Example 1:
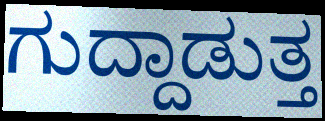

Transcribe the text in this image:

ಗುದ್ದಾಡುತ್ತ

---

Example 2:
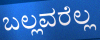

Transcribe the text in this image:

ಬಲ್ಲವರೆಲ್ಲ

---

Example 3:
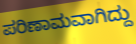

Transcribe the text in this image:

ಪರಿಣಾಮವಾಗಿದ್ದು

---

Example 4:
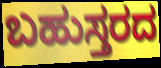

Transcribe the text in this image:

ಬಹುಸ್ತರದ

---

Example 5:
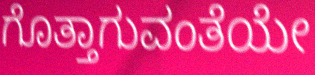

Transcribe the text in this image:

ಗೊತ್ತಾಗುವಂತೆಯೇ